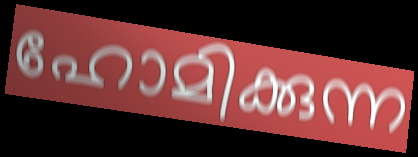
ഹോമിക്കുന്ന